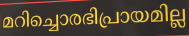
മറിച്ചൊരഭിപ്രായമില്ല